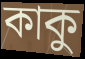
কাকু